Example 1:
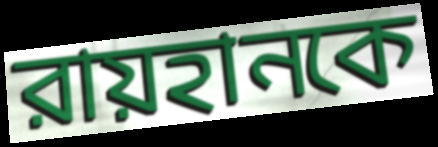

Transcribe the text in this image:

রায়হানকে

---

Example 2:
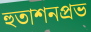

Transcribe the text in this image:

হুতাশনপ্রভ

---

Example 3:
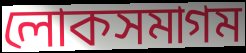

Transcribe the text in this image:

লোকসমাগম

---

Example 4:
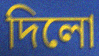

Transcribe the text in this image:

দিলো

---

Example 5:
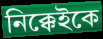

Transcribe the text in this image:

নিক্কেইকে